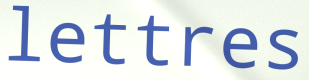
lettres